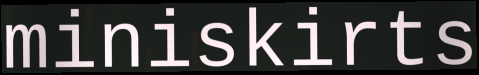
miniskirts